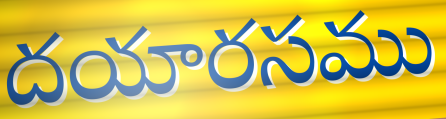
దయారసము